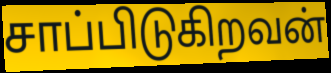
சாப்பிடுகிறவன்